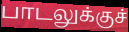
பாடலுக்குச்